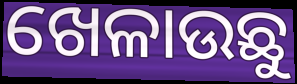
ଖେଳାଉଛୁ